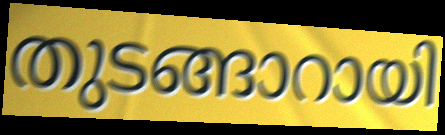
തുടങ്ങാറായി